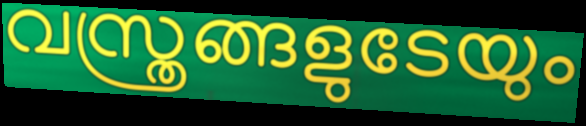
വസ്ത്രങ്ങളുടേയും